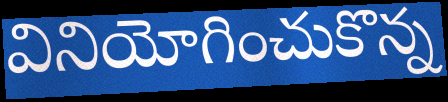
వినియోగించుకొన్న